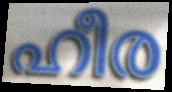
ഹീര